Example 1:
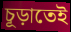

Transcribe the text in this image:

চূড়াতেই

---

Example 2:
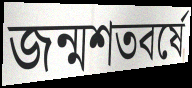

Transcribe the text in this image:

জন্মশতবর্ষে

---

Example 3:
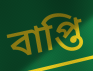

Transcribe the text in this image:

বাপ্তি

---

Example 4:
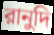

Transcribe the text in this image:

রানুদি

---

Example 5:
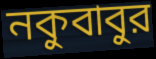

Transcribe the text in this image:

নকুবাবুর